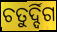
ଚତୁର୍ଦ୍ଦିଗ